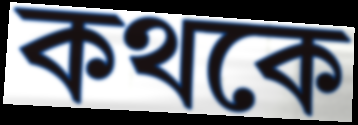
কথকে